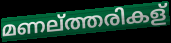
മണല്ത്തരികള്